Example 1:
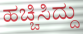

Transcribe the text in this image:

ಹಚ್ಚಿಸಿದ್ದು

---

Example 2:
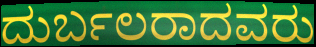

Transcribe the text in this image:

ದುರ್ಬಲರಾದವರು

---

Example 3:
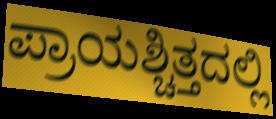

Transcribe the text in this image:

ಪ್ರಾಯಶ್ಚಿತ್ತದಲ್ಲಿ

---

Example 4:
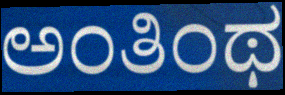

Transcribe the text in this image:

ಅಂತಿಂಥ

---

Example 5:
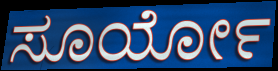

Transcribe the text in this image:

ಸೂರ್ಯೋ